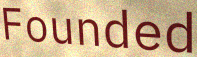
Founded